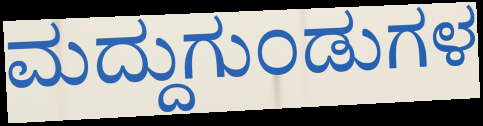
ಮದ್ದುಗುಂಡುಗಳ